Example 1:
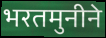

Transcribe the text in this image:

भरतमुनीने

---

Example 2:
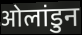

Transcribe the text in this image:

ओलांडुन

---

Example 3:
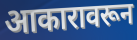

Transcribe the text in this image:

आकारावरून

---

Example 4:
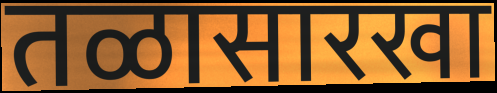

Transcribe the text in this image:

तळासारखा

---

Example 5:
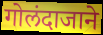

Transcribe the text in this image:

गोलंदाजाने